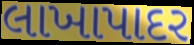
લાખાપાદર